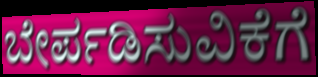
ಬೇರ್ಪಡಿಸುವಿಕೆಗೆ